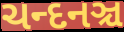
ચન્દનઞ્ચ